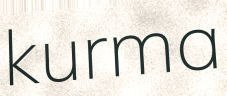
kurma